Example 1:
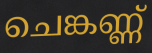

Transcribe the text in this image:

ചെങ്കണ്ണ്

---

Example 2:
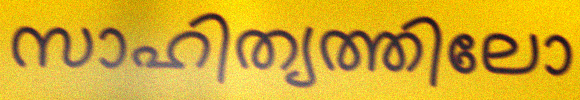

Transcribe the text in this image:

സാഹിത്യത്തിലോ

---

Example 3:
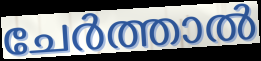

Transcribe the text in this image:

ചേർത്താൽ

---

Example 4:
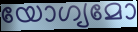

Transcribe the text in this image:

യോഗ്യമോ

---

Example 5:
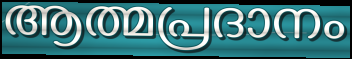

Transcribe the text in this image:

ആത്മപ്രദാനം